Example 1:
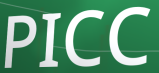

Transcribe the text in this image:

PICC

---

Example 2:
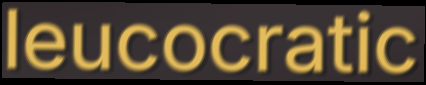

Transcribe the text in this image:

leucocratic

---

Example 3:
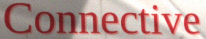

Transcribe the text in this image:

Connective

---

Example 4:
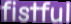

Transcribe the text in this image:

fistful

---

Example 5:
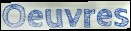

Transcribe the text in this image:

Oeuvres